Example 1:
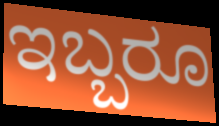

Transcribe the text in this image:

ಇಬ್ಬರೂ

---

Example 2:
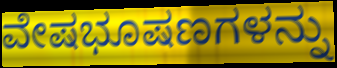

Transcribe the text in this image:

ವೇಷಭೂಷಣಗಳನ್ನು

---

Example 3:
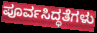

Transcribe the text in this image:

ಪೂರ್ವಸಿದ್ಧತೆಗಳು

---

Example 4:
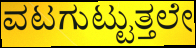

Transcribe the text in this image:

ವಟಗುಟ್ಟುತ್ತಲೇ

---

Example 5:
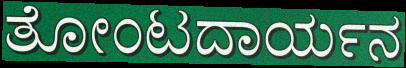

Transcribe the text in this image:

ತೋಂಟದಾರ್ಯನ